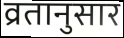
व्रतानुसार